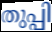
തുപ്പി